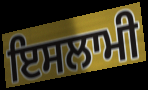
ਇਸਲਾਮੀ